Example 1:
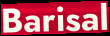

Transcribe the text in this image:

Barisal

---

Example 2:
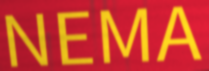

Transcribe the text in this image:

NEMA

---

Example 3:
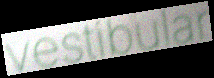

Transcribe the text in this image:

vestibular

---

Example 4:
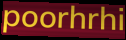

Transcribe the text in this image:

poorhrhi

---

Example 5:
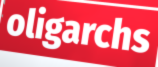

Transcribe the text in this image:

oligarchs